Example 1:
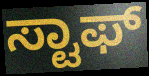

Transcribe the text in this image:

ಸ್ಟಾಫ್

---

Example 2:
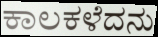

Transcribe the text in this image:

ಕಾಲಕಳೆದನು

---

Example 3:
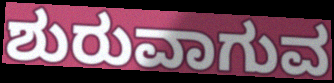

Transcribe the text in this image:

ಶುರುವಾಗುವ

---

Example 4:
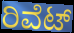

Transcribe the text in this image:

ರಿವೆಟ್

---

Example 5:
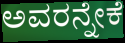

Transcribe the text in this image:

ಅವರನ್ನೇಕೆ